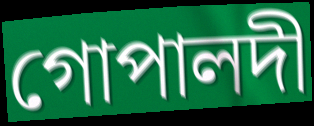
গোপালদী